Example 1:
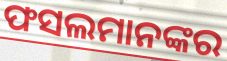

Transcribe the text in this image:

ଫସଲମାନଙ୍କର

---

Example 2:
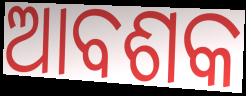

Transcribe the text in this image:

ଆବଶକ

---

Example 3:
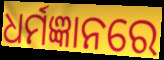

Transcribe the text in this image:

ଧର୍ମଜ୍ଞାନରେ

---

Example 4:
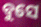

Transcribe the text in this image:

ବୁସେ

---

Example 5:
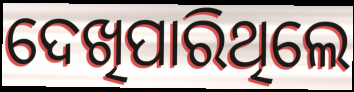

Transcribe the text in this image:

ଦେଖିପାରିଥିଲେ